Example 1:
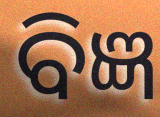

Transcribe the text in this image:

ବିଜ୍ଞ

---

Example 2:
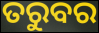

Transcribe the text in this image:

ତରୁବର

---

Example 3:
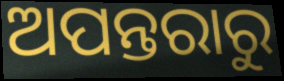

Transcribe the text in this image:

ଅପନ୍ତରାରୁ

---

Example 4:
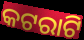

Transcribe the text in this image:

କଟରାଟି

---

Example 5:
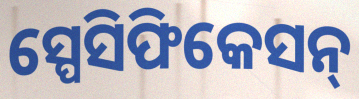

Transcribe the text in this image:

ସ୍ପେସିଫିକେସନ୍